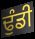
ਢੁੰਡੀ